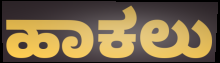
ಹಾಕಲು